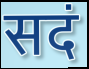
सदं